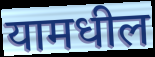
यामधील